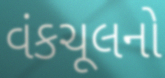
વંકચૂલનો